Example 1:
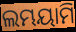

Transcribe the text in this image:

ଲମ୍ଭୟାମି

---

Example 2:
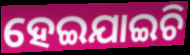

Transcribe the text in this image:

ହେଇଯାଇଚି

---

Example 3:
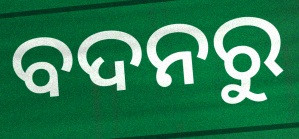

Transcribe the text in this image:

ବଦନରୁ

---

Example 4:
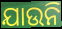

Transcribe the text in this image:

ଯାଉନି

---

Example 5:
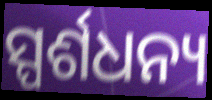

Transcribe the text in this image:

ସ୍ପର୍ଶଧନ୍ୟ